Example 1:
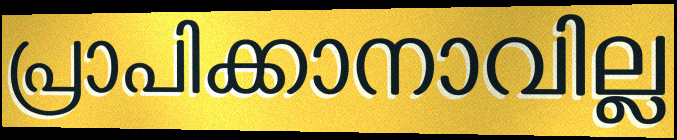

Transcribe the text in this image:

പ്രാപിക്കാനാവില്ല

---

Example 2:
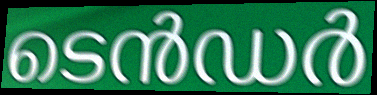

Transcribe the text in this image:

ടെൻഡർ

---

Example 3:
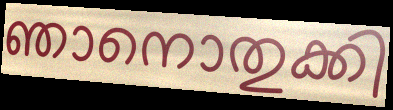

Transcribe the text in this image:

ഞാനൊതുക്കി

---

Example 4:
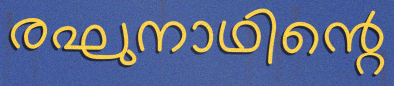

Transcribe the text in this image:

രഘുനാഥിന്റെ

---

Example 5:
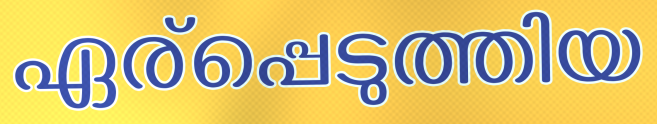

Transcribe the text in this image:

ഏര്പ്പെടുത്തിയ